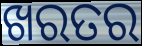
ଖରତର